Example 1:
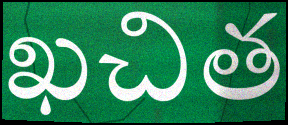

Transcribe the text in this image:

ఖచిత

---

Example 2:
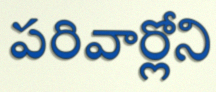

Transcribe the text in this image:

పరివార్లోని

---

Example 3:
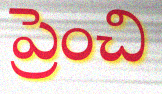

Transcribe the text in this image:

ప్రెంచి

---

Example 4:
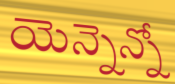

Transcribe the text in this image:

యెన్నెన్నో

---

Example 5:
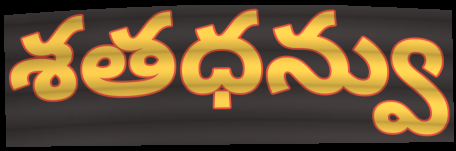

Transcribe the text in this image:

శతధన్వు